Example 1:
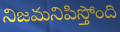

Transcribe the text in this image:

నిజమనిపిస్తోంది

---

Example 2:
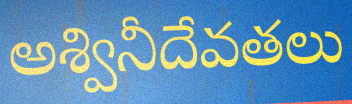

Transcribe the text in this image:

అశ్వినీదేవతలు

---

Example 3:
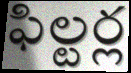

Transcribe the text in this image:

ఫిల్టర్ల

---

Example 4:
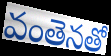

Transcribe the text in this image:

వంతెనతో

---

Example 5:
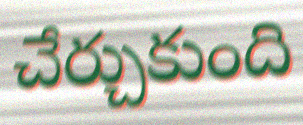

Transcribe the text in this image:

చేర్చుకుంది